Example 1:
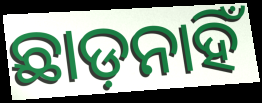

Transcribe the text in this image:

ଛାଡ଼ନାହିଁ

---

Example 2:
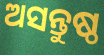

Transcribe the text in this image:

ଅସନ୍ତୁଷ୍ଠ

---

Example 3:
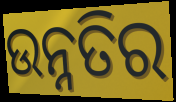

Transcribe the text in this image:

ଉନ୍ନତିର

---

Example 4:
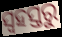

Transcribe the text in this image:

ସ୍ୱହସ୍ତରୁ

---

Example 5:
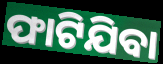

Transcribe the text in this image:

ଫାଟିଯିବା